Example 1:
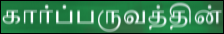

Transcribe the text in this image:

கார்ப்பருவத்தின்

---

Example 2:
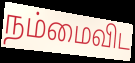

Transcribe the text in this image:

நம்மைவிட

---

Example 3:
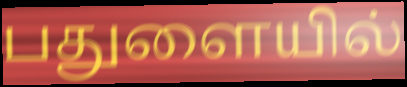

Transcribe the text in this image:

பதுளையில்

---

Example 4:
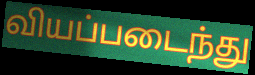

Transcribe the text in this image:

வியப்படைந்து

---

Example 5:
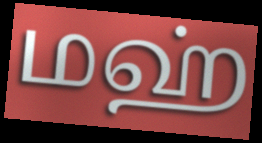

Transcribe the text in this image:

மஹ்